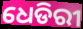
ଧେଡିରୀ